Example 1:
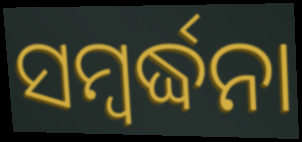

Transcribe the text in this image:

ସମ୍ୱର୍ଦ୍ଧନା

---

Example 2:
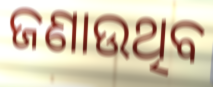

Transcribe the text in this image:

ଜଣାଉଥିବ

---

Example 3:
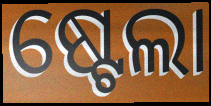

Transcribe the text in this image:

ଷ୍ଟେଲା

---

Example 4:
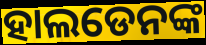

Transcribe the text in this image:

ହାଲଡେନଙ୍କ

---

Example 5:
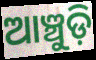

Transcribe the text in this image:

ଆଞ୍ଚୁଡ଼ି